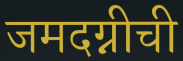
जमदग्नीची